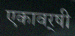
एकावर्षी